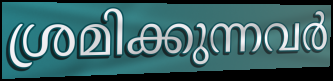
ശ്രമിക്കുന്നവർ